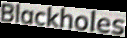
Blackholes